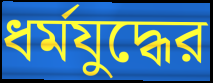
ধর্মযুদ্ধের